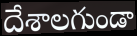
దేశాలగుండా